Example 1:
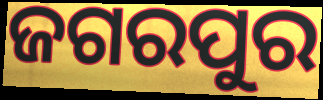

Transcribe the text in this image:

ଜଗରପୁର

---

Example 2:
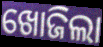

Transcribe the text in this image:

ଖୋଜିଲା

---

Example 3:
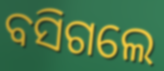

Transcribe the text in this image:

ବସିଗଲେ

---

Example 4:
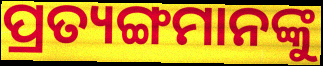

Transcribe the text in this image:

ପ୍ରତ୍ୟଙ୍ଗମାନଙ୍କୁ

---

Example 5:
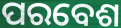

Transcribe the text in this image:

ପରବେଶ